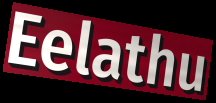
Eelathu